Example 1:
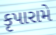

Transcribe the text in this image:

કૃપારામે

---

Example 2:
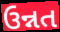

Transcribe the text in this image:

ઉન્નત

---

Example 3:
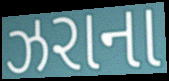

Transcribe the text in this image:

ઝરાના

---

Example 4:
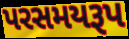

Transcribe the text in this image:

પરસમયરૂપ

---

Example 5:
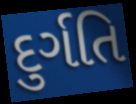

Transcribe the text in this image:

દુર્ગતિ